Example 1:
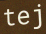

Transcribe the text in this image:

tej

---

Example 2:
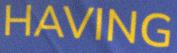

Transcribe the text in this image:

HAVING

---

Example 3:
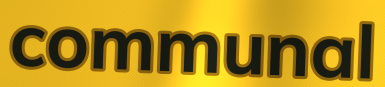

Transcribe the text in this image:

communal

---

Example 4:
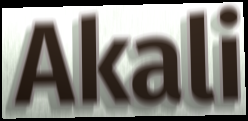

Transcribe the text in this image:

Akali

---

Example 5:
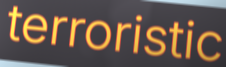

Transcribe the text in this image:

terroristic